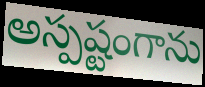
అస్పష్టంగాను